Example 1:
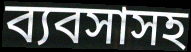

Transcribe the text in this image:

ব্যবসাসহ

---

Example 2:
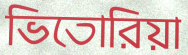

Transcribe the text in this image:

ভিতোরিয়া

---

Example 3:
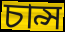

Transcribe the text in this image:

চান্স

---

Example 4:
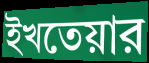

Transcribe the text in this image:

ইখতেয়ার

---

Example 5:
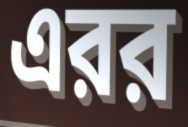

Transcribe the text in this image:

এরর